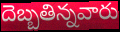
దెబ్బతిన్నవారు